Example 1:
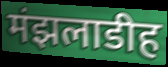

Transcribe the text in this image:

मंझलाडीह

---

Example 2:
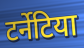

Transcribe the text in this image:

टर्नेटिया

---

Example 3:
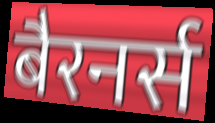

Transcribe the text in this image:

बैरनर्स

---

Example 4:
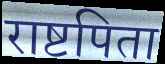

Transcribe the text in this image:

राष्टपिता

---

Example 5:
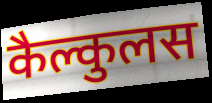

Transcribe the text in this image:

कैल्कुलस